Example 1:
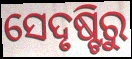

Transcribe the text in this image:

ସେଦୃଷ୍ଟିରୁ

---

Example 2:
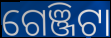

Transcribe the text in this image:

ଗେଞ୍ଜିଟା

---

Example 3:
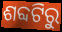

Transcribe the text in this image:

ଶବ୍ଦଟିରୁ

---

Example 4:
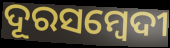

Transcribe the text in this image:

ଦୂରସମ୍ବେଦୀ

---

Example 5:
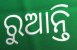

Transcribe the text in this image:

ରୁଆନ୍ତି